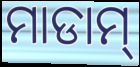
ମାଡାମ୍